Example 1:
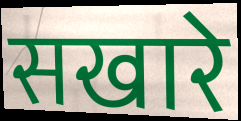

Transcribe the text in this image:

सखारे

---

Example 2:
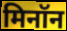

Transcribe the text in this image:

मिनॉन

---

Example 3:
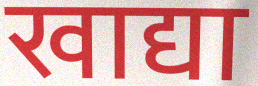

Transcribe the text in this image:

खाद्या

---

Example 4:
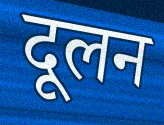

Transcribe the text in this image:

दूलन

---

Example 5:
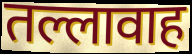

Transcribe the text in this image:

तल्लावाह